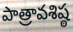
పాత్రావశిష్ఠ